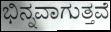
ಭಿನ್ನವಾಗುತ್ತವೆ